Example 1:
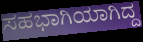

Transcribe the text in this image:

ಸಹಭಾಗಿಯಾಗಿದ್ದ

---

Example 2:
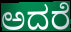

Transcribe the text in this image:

ಅದರೆ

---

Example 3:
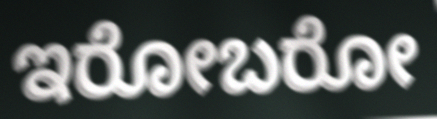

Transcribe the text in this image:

ಇರೋಬರೋ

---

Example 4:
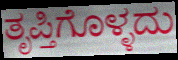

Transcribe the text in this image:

ತೃಪ್ತಿಗೊಳ್ಳದು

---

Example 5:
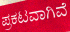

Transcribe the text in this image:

ಪ್ರಕಟವಾಗಿವೆ